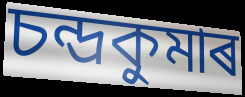
চন্দ্ৰকুমাৰ